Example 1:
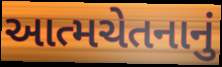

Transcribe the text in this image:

આત્મચેતનાનું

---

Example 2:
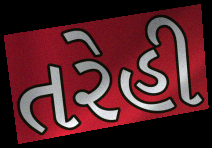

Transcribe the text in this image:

તરેહી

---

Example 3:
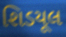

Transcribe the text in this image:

શિડયૂલ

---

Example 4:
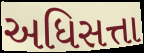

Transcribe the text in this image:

અધિસત્તા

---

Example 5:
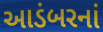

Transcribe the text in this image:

આડંબરનાં